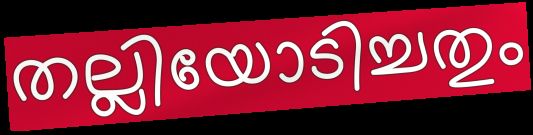
തല്ലിയോടിച്ചതും